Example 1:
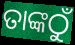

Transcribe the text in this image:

ତାଙ୍କଠୁଁ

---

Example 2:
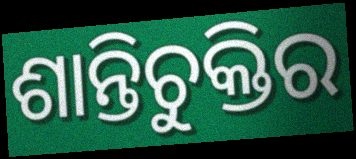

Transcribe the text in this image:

ଶାନ୍ତିଚୁକ୍ତିର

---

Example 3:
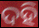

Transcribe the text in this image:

ଦହି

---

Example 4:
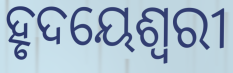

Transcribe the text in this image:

ହୃଦୟେଶ୍ୱରୀ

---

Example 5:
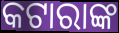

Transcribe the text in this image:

କଟାରାଙ୍କ